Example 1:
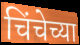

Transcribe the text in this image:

चिंचेच्या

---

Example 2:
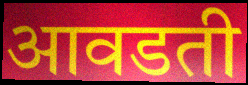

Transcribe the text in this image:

आवडती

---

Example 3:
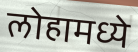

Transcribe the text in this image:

लोहामध्ये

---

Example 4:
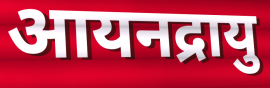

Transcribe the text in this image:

आयनद्रायु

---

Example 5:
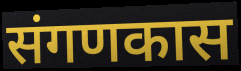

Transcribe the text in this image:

संगणकास